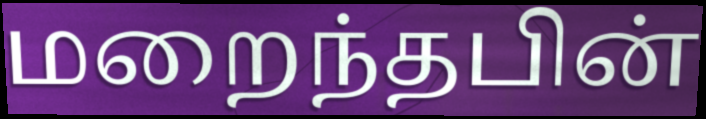
மறைந்தபின்